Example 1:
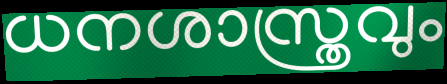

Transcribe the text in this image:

ധനശാസ്ത്രവും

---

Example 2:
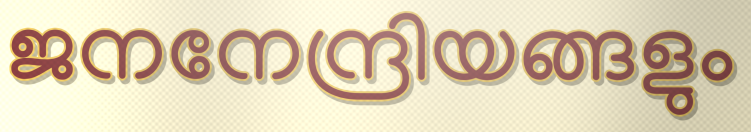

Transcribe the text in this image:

ജനനേന്ദ്രിയങ്ങളും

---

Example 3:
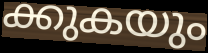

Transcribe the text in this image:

ക്കുകയും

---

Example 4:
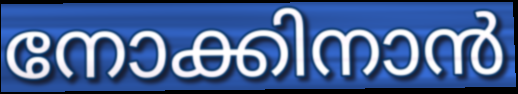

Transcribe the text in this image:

നോക്കിനാൻ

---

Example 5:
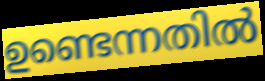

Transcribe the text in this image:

ഉണ്ടെന്നതിൽ